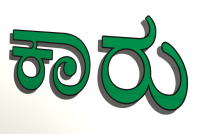
ಕಾರು